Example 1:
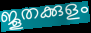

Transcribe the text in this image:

ജൂതക്കുളം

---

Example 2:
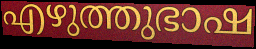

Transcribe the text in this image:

എഴുത്തുഭാഷ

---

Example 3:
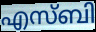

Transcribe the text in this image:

എസ്ബി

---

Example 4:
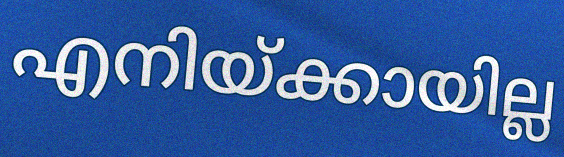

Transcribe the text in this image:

എനിയ്ക്കായില്ല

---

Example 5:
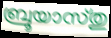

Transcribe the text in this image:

ബ്രൂയാസ്തു